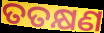
ତତକ୍ଷଣ